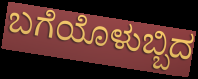
ಬಗೆಯೊಳುಬ್ಬಿದ